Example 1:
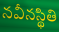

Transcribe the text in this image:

నవీనస్థితి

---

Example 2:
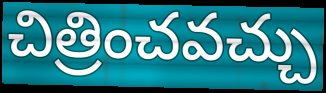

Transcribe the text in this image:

చిత్రించవచ్చు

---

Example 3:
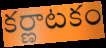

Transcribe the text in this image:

కర్ణాటకం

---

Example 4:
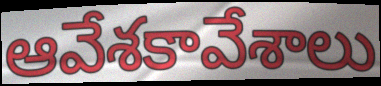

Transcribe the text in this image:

ఆవేశకావేశాలు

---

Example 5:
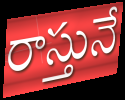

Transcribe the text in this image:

రాస్తునే